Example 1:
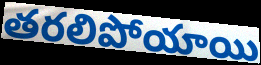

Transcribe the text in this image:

తరలిపోయాయి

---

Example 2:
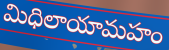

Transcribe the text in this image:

మిధిలాయామహం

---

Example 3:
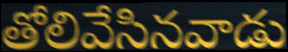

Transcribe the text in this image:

తోలివేసినవాడు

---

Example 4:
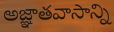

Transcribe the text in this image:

అజ్ఞాతవాసాన్ని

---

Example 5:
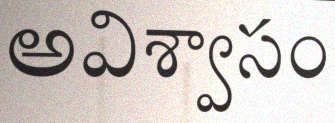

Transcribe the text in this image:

అవిశ్వాసం